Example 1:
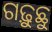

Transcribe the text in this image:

ଗଢ଼ୁଛୁ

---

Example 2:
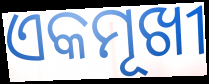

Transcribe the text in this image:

ଏକମୂଖୀ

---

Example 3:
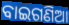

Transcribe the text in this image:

ବାଇଗଣିଆ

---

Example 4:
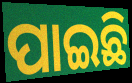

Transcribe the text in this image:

ପାଇଛି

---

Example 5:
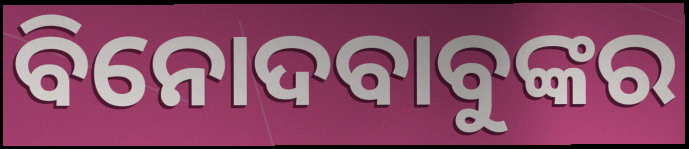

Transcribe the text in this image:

ବିନୋଦବାବୁଙ୍କର